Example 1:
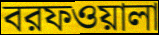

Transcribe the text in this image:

বরফওয়ালা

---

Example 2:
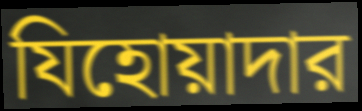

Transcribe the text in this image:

যিহোয়াদার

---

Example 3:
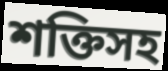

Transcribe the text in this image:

শক্তিসহ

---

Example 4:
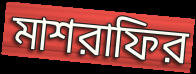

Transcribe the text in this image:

মাশরাফির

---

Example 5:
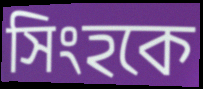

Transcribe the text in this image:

সিংহকে